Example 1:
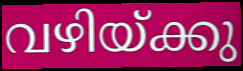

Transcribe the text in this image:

വഴിയ്ക്കു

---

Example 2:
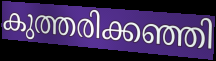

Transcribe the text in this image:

കുത്തരിക്കഞ്ഞി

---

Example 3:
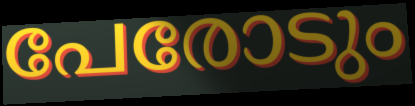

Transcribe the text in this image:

പേരോടും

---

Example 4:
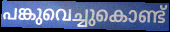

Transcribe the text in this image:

പങ്കുവെച്ചുകൊണ്ട്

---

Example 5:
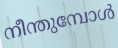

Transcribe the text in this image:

നീന്തുമ്പോൾ